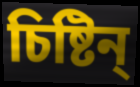
চিষ্টিন্